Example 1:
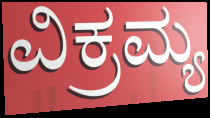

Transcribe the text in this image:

ವಿಕ್ರಮ್ಯ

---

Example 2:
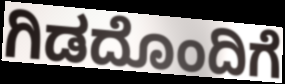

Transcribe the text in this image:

ಗಿಡದೊಂದಿಗೆ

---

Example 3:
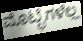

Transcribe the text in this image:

ಮೊಟ್ಟೆಗಳೆಲ್ಲ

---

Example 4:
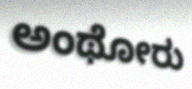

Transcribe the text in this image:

ಅಂಥೋರು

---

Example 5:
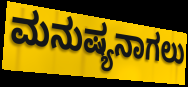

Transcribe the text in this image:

ಮನುಷ್ಯನಾಗಲು